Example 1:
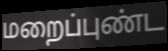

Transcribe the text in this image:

மறைப்புண்ட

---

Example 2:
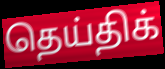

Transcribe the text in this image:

தெய்திக்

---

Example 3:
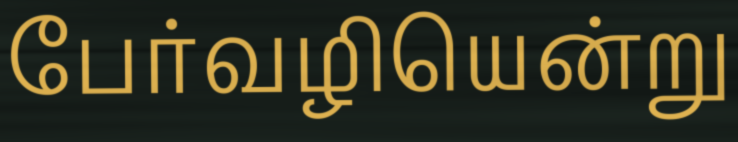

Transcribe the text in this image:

பேர்வழியென்று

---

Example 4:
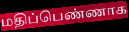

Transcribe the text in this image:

மதிப்பெண்ணாக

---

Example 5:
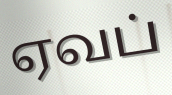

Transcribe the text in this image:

ஏவப்